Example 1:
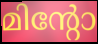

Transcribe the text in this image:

മിന്റോ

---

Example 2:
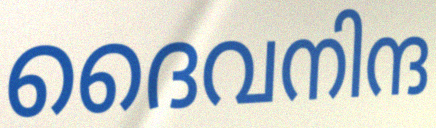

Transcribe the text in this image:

ദൈവനിന്ദ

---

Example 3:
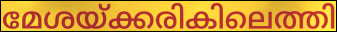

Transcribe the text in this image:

മേശയ്ക്കരികിലെത്തി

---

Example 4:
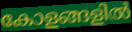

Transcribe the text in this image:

കോളങ്ങളിൽ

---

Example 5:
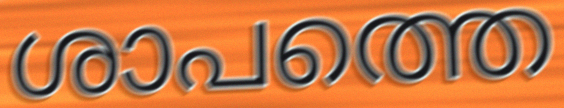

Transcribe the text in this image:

ശാപത്തെ